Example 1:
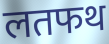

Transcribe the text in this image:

लतफथ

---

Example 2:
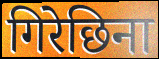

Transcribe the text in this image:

गिरेछिना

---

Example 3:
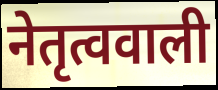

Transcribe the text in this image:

नेतृत्ववाली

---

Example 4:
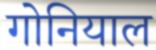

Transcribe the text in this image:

गोनियाल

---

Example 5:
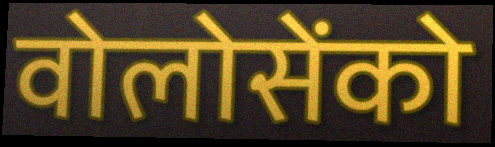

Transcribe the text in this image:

वोलोसेंको